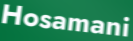
Hosamani